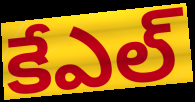
కేఎల్